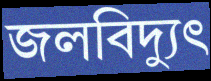
জলবিদ্যুৎ